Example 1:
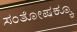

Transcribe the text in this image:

ಸಂತೋಷಕ್ಕೂ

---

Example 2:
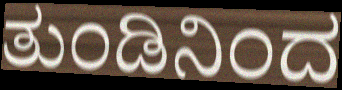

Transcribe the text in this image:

ತುಂಡಿನಿಂದ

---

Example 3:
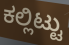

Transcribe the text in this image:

ಕಲ್ಲಿಟ್ಟು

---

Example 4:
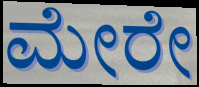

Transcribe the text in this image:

ಮೇರೇ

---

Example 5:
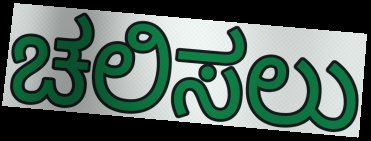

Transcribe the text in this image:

ಚಲಿಸಲು